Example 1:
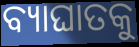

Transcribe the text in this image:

ବ୍ୟାଘାତକୁ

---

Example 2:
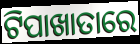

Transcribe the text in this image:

ଟିପାଖାତାରେ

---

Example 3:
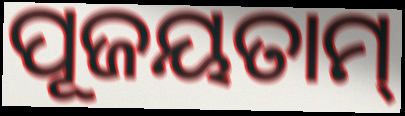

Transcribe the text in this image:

ପୂଜୟତାମ୍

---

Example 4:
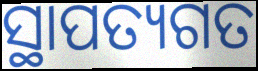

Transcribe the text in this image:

ସ୍ଥାପତ୍ୟଗତ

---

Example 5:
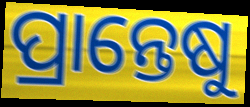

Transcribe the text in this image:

ପ୍ରାନ୍ତେଷୁ